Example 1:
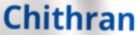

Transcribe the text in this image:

Chithran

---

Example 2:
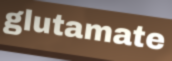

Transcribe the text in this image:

glutamate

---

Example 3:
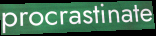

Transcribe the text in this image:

procrastinate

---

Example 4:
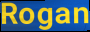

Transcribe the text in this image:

Rogan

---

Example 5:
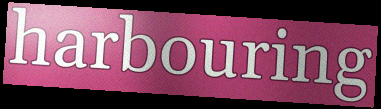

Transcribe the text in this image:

harbouring